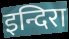
इन्दिरा